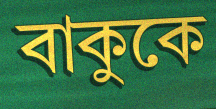
বাকুকে